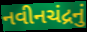
નવીનચંદ્રનું